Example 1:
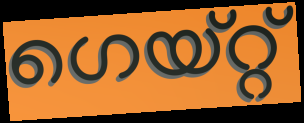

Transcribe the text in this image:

ഗെയ്റ്റ്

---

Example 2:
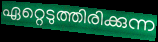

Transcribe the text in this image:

ഏറ്റെടുത്തിരിക്കുന്ന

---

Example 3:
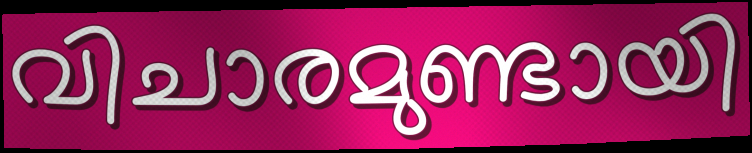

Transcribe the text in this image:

വിചാരമുണ്ടായി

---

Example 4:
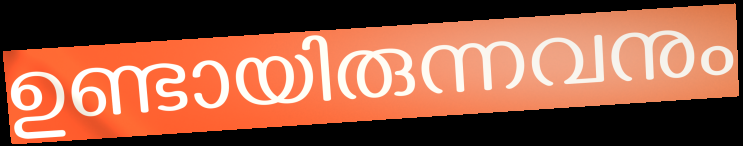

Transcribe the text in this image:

ഉണ്ടായിരുന്നവനും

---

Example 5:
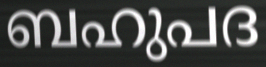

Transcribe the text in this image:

ബഹുപദ